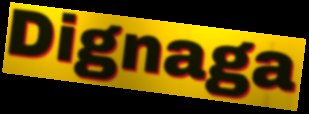
Dignaga